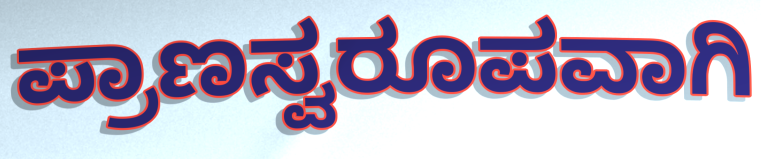
ಪ್ರಾಣಸ್ವರೂಪವಾಗಿ